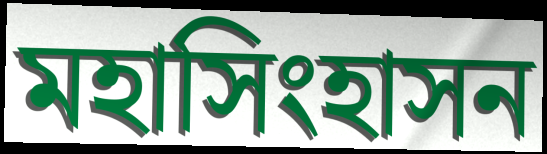
মহাসিংহাসন